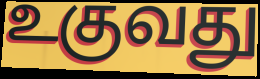
உகுவது